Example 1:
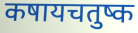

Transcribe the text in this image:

कषायचतुष्क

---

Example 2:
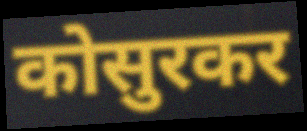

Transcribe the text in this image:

कोसुरकर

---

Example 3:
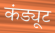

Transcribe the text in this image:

कंड्यूट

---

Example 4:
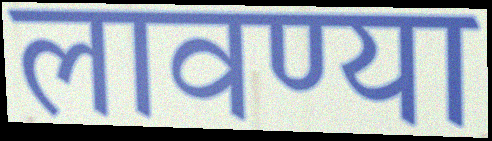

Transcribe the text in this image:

लावण्या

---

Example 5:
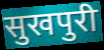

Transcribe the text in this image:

सुखपुरी